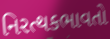
નિરત્થકભાવતો